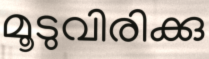
മൂടുവിരിക്കു